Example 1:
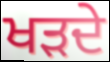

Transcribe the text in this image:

ਖੜਦੇ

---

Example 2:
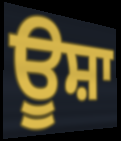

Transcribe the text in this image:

ਊਸ਼ਾ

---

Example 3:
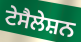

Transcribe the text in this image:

ਟੇਸੈਲੇਸ਼ਨ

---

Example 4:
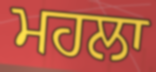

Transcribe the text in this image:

ਮਹਲਾ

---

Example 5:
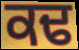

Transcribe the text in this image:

ਕਢ